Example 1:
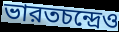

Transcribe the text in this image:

ভারতচন্দ্রেও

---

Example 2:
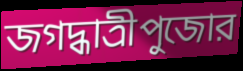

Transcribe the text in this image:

জগদ্ধাত্রীপুজোর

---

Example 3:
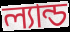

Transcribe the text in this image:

ল্যান্ড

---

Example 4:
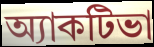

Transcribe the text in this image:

অ্যাকটিভা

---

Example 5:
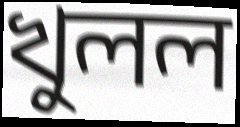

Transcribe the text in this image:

খুলল